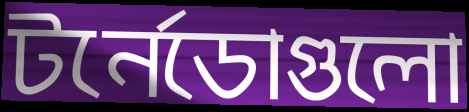
টর্নেডোগুলো